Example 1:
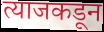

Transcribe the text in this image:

त्याजकडून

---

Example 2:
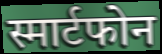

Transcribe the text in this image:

स्मार्टफोन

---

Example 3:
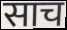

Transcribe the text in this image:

साच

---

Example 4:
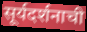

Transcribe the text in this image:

सूर्यदर्शनाची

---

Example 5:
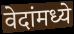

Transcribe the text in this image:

वेदांमध्ये